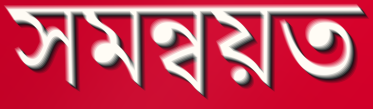
সমন্বয়ত